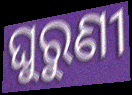
ଘୁରୁଣୀ